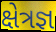
ક્ષેત્રજ્ઞ